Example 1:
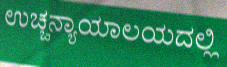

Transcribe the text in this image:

ಉಚ್ಚನ್ಯಾಯಾಲಯದಲ್ಲಿ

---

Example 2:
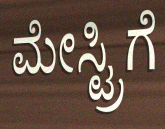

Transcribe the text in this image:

ಮೇಸ್ಟ್ರಿಗೆ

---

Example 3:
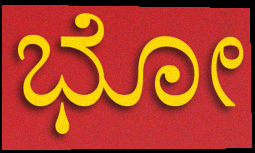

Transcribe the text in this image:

ಭೋ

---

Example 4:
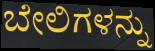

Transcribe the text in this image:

ಬೇಲಿಗಳನ್ನು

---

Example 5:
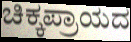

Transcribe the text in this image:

ಚಿಕ್ಕಪ್ರಾಯದ